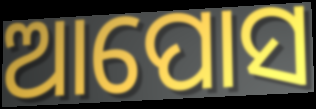
ଆପୋସ